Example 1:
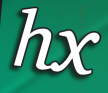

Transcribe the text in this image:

hx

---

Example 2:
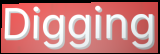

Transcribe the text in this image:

Digging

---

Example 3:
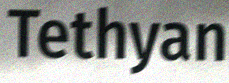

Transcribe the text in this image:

Tethyan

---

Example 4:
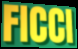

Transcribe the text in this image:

FICCI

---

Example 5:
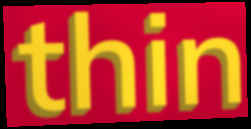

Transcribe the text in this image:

thin